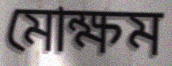
মোক্ষম